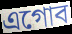
এগোব